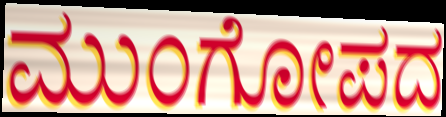
ಮುಂಗೋಪದ